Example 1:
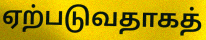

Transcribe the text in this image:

ஏற்படுவதாகத்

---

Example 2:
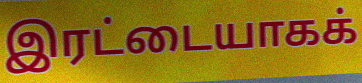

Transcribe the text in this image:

இரட்டையாகக்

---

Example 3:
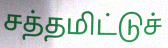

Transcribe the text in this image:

சத்தமிட்டுச்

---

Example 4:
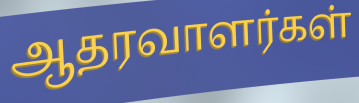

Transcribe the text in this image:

ஆதரவாளர்கள்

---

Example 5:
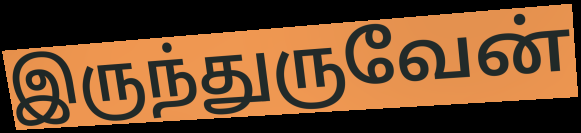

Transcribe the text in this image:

இருந்துருவேன்